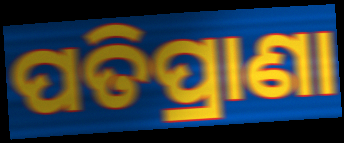
ପତିପ୍ରାଣା